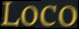
Loco